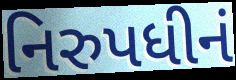
નિરુપધીનં